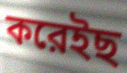
করেইছ